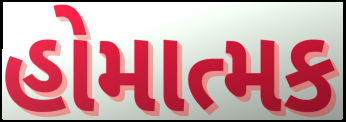
હોમાત્મક